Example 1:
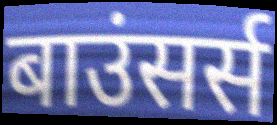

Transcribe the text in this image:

बाउंसर्स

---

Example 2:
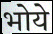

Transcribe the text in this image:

भोये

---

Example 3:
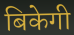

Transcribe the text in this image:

बिकेगी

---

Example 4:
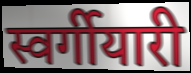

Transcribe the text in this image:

स्वर्गीयारी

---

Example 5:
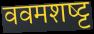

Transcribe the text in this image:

ववमशष्ट्ट